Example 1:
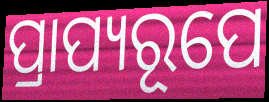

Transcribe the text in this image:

ପ୍ରାପ୍ୟରୂପେ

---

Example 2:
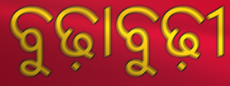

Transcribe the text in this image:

ବୁଢ଼ାବୁଢ଼ୀ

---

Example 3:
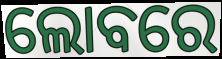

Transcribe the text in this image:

ଲୋବରେ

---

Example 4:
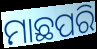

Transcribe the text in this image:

ମାଛପରି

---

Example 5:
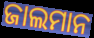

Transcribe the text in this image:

ଜାଲମାନ